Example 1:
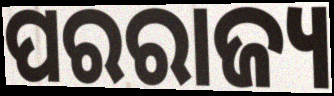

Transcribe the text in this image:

ପରରାଜ୍ୟ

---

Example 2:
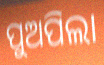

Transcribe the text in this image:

ପୁଅପିଲା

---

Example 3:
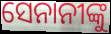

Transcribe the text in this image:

ସେନାନୀଙ୍କୁ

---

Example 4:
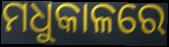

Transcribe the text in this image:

ମଧୁକାଳରେ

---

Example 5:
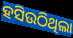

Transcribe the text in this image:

ହସିଉଠିଥିଲା